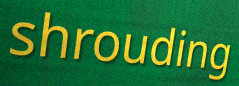
shrouding